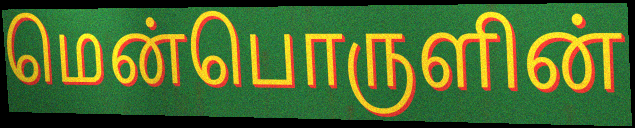
மென்பொருளின்